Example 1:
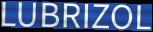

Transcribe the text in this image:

LUBRIZOL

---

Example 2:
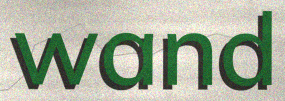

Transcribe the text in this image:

wand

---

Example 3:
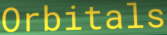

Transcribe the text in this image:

Orbitals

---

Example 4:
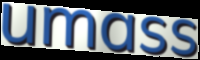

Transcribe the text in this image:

umass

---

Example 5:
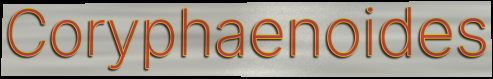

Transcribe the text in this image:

Coryphaenoides